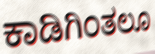
ಕಾಡಿಗಿಂತಲೂ